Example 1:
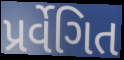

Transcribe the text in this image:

પ્રર્વેગિત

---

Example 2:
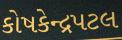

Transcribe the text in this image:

કોષકેન્દ્રપટલ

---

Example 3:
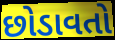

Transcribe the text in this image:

છોડાવતો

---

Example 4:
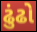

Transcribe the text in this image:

ઢુંઢો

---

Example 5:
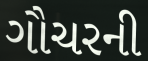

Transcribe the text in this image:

ગૌચરની